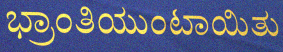
ಭ್ರಾಂತಿಯುಂಟಾಯಿತು